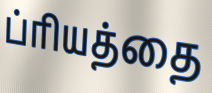
ப்ரியத்தை